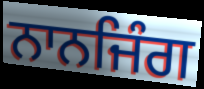
ਨਾਨਜਿੰਗ